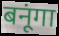
बनूंगा